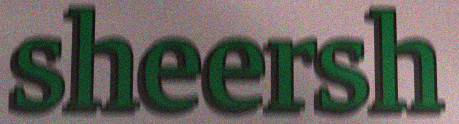
sheersh